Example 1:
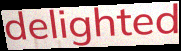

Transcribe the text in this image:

delighted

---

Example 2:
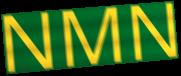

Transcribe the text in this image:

NMN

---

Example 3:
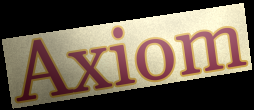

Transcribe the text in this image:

Axiom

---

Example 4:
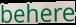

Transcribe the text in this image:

behere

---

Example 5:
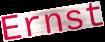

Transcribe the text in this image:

Ernst